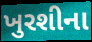
ખુરશીના